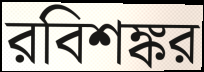
রবিশঙ্কর